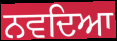
ਨਵਦਿਆ